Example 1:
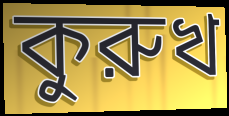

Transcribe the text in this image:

কুরুখ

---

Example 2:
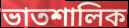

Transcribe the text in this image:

ভাতশালিক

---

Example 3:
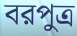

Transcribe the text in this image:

বরপুত্র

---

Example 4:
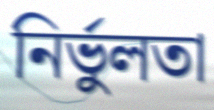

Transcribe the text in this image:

নির্ভুলতা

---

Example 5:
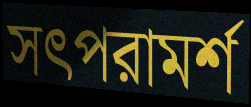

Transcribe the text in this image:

সৎপরামর্শ